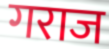
गराज